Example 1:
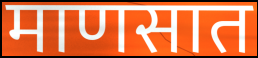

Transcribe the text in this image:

माणसात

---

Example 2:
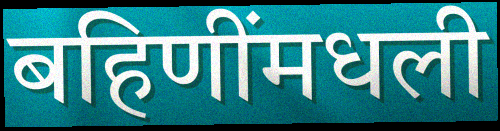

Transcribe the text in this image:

बहिणींमधली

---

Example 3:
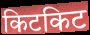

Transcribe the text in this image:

किटकिट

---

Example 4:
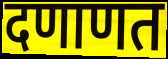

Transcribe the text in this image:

दणाणत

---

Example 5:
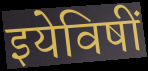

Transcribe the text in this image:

इयेविषीं